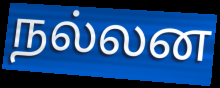
நல்லன